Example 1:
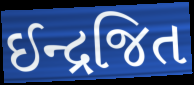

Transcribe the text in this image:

ઈન્દ્રજિત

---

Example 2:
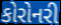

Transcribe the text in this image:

કોરોનરી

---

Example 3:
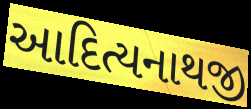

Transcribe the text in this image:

આદિત્યનાથજી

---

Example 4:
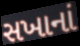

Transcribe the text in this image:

સખાનાં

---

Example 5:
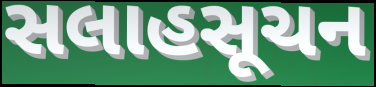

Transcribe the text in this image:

સલાહસૂચન